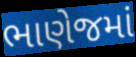
ભાણેજમાં